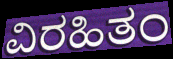
ವಿರಹಿತಂ